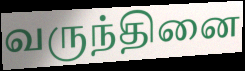
வருந்தினை